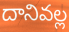
దానివల్ల